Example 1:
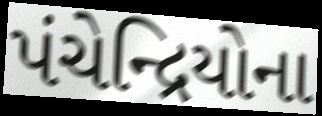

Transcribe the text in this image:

પંચેન્દ્રિયોના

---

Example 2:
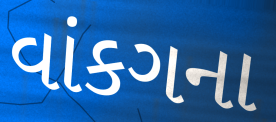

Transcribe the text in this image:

વાંકગના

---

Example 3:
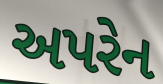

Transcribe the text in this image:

અપરેન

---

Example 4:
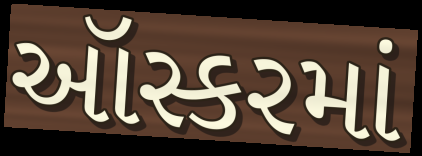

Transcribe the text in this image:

ઑસ્કરમાં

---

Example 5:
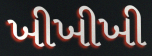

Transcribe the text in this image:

ખીખીખી